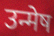
उन्मेष